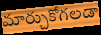
మార్చుకోగలడా